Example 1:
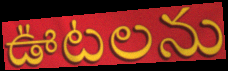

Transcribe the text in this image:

ఊటలను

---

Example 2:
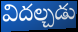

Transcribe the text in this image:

విదల్చడు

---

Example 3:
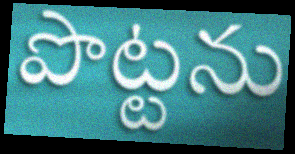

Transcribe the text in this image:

పొట్టను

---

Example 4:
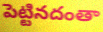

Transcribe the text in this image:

పెట్టినదంతా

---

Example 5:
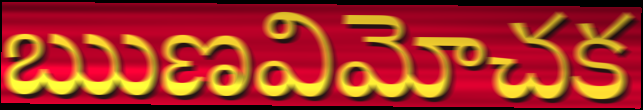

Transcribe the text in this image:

ఋణవిమోచక